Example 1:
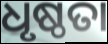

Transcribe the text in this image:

ଧୃଷ୍ଠତା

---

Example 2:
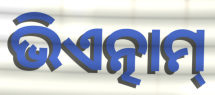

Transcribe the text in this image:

ଭିଏତ୍ନାମ୍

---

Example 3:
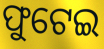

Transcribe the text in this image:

ଫୁଟେଇ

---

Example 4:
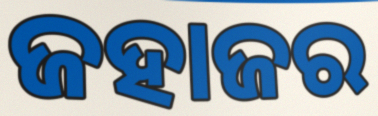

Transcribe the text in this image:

ଜହାଜର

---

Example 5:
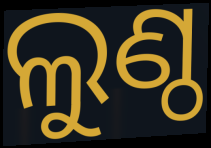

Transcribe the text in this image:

ଲୁଣ୍ଠ